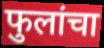
फुलांचा